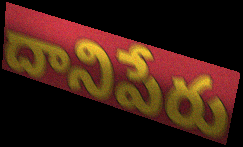
దానిపేరు